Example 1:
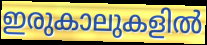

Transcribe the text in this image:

ഇരുകാലുകളിൽ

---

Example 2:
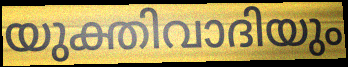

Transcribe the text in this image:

യുക്തിവാദിയും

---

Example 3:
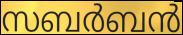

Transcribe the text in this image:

സബർബൻ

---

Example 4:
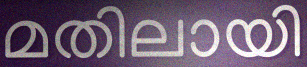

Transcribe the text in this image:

മതിലായി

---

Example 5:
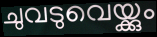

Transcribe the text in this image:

ചുവടുവെയ്ക്കും